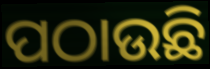
ପଠାଉଛି